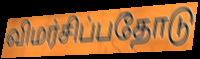
விமர்சிப்பதோடு